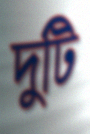
দুটি